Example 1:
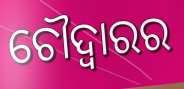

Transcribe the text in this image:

ଚୌଦ୍ୱାରର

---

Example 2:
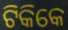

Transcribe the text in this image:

ଟିକିକେ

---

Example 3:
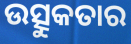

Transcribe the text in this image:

ଉତ୍ସୁକତାର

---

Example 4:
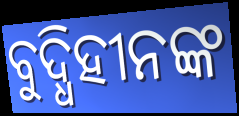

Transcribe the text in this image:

ବୁଦ୍ଧିହୀନଙ୍କ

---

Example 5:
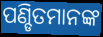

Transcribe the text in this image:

ପଣ୍ଡିତମାନଙ୍କ